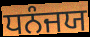
ਧਨੰਜਯ